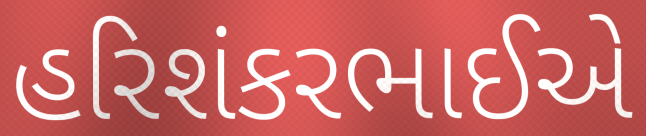
હરિશંકરભાઈએ